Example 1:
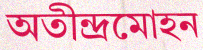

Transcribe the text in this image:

অতীন্দ্রমোহন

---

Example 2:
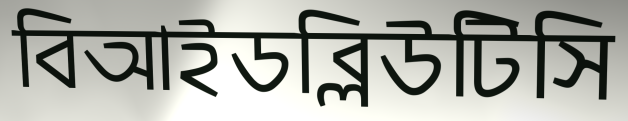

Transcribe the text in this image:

বিআইডব্লিউটিসি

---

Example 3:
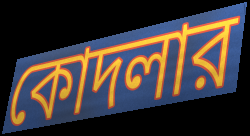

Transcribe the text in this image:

কোদলার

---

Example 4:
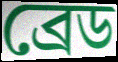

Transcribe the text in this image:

ব্রেড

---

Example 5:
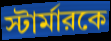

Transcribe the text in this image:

স্টার্মারকে